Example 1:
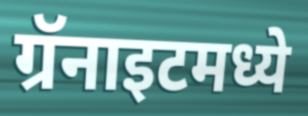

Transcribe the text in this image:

ग्रॅनाइटमध्ये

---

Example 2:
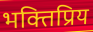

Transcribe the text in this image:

भक्तिप्रिय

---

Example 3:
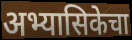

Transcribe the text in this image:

अभ्यासिकेचा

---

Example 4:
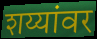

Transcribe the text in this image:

शय्यांवर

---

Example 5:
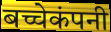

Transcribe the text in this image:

बच्चेकंपनी